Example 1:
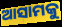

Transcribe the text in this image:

ଆସାମକୁ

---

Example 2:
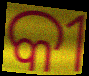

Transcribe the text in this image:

କୀ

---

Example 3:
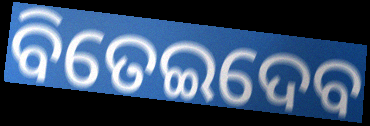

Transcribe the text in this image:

ବିତେଇଦେବ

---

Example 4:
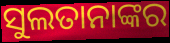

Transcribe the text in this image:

ସୁଲତାନାଙ୍କର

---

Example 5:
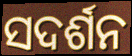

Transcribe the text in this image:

ସଦର୍ଶନ